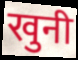
खुनी